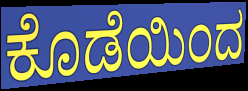
ಕೊಡೆಯಿಂದ